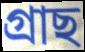
গ্ৰাছ